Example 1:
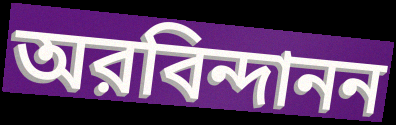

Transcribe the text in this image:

অরবিন্দানন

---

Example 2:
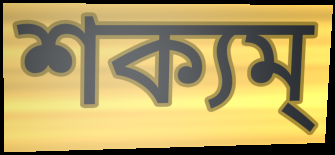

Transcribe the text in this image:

শক্যম্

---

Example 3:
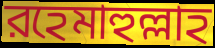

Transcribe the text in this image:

রহেমাহুল্লাহ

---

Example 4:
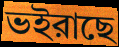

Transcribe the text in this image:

ভইরাছে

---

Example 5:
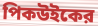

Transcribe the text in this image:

পিকউইকের